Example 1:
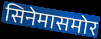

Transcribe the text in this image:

सिनेमासमोर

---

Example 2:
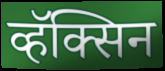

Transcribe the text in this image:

व्हॅक्सिन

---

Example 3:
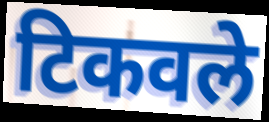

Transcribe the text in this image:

टिकवले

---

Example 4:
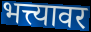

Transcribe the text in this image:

भत्त्यावर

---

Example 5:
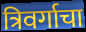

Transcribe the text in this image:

त्रिवर्गाचा